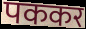
पककर